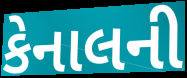
કેનાલની